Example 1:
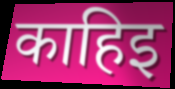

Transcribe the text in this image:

काहिइ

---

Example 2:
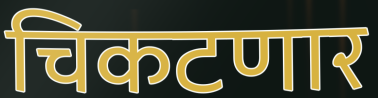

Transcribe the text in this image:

चिकटणार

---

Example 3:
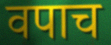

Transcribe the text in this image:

वपाच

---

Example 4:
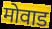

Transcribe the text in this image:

मोवाड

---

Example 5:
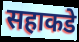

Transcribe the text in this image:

सहाकडे